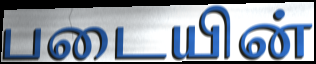
படையின்